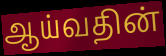
ஆய்வதின்